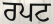
ਰਪਟ